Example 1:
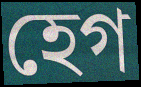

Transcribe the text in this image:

হেগ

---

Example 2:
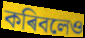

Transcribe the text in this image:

কৰিবলেও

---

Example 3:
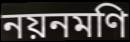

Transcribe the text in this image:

নয়নমণি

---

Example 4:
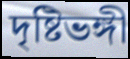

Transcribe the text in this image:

দৃষ্টিভঙ্গী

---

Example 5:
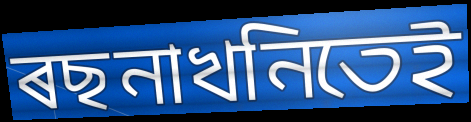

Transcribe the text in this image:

ৰছনাখনিতেই